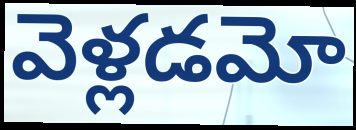
వెళ్లడమో